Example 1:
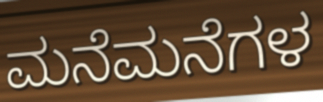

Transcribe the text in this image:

ಮನೆಮನೆಗಳ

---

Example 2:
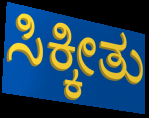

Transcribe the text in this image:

ಸಿಕ್ಕೀತು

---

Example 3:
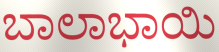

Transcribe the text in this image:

ಬಾಲಾಭಾಯಿ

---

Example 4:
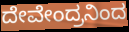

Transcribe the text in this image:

ದೇವೇಂದ್ರನಿಂದ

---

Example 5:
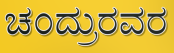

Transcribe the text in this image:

ಚಂದ್ರುರವರ